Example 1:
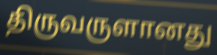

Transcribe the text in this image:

திருவருளானது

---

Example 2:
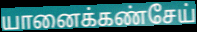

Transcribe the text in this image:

யானைக்கண்சேய்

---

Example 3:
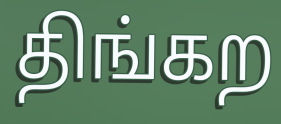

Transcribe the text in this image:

திங்கற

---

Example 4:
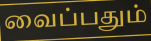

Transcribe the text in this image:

வைப்பதும்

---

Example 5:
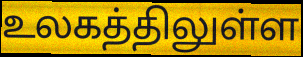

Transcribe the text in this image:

உலகத்திலுள்ள